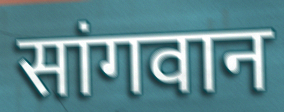
सांगवान